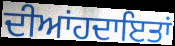
ਦੀਆਂਹਦਾਇਤਾਂ